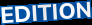
EDITION